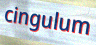
cingulum